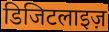
डिजिटलाइज़